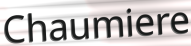
Chaumiere